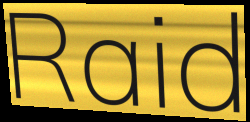
Raid